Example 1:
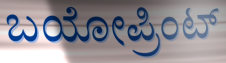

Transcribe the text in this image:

ಬಯೋಪ್ರಿಂಟ್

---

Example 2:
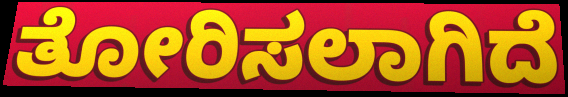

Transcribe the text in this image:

ತೋರಿಸಲಾಗಿದೆ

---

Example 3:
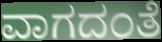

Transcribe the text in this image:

ವಾಗದಂತೆ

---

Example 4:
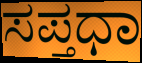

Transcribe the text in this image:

ಸಪ್ತಧಾ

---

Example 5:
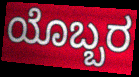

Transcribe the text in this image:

ಯೊಬ್ಬರ